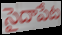
సైదాపేట